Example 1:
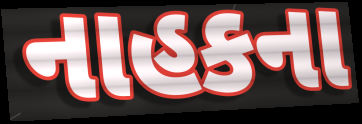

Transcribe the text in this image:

નાહકના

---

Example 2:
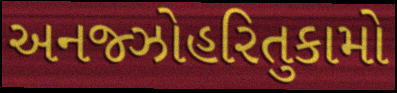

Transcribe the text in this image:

અનજ્ઝોહરિતુકામો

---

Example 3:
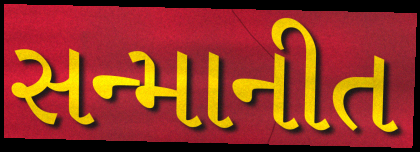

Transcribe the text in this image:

સન્માનીત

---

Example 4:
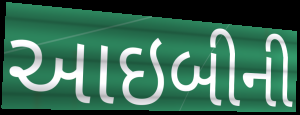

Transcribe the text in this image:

આઇબીની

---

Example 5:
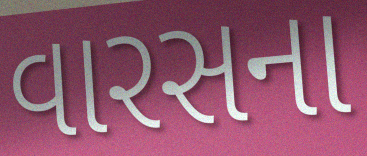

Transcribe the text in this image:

વારસના